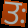
उः